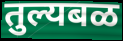
तुल्यबळ